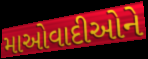
માઓવાદીઓને